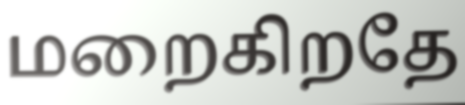
மறைகிறதே